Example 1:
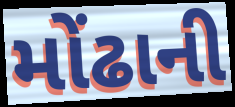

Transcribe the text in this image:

મોંઢાની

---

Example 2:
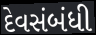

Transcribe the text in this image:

દેવસંબંધી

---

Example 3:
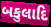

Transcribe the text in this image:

બકુલાદિ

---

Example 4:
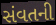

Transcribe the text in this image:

સંવતની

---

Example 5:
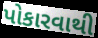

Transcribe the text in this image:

પોકારવાથી